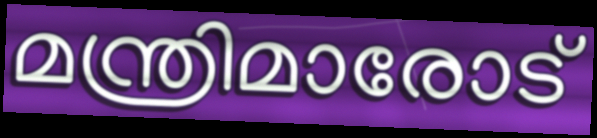
മന്ത്രിമാരോട്